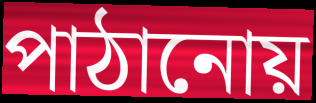
পাঠানোয়